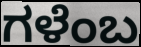
ಗಳೆಂಬ